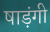
षाड़ंगी